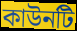
কাউনটি